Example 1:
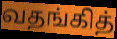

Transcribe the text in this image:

வதங்கித்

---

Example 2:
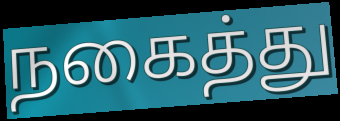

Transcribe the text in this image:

நகைத்து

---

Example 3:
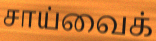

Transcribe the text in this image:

சாய்வைக்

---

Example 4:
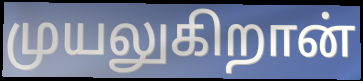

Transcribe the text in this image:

முயலுகிறான்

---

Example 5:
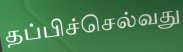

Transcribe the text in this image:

தப்பிச்செல்வது